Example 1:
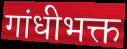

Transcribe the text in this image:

गांधीभक्त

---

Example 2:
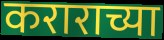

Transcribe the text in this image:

कराराच्या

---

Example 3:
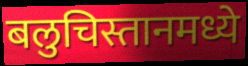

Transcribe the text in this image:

बलुचिस्तानमध्ये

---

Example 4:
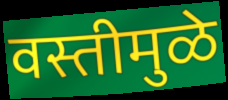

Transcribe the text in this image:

वस्तीमुळे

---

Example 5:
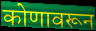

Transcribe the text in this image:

कोणावरून